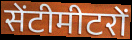
सेंटीमीटरों